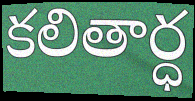
కలితార్ధ